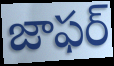
జాఫర్